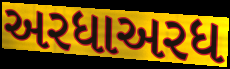
અરધાઅરધ